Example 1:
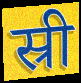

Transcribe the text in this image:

स्री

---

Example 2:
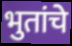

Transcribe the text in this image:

भुतांचे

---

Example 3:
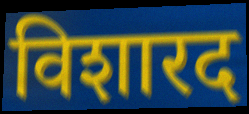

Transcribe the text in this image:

विशारद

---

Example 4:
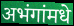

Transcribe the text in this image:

अभंगांमधे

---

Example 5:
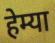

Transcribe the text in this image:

हेम्या